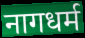
नागधर्म